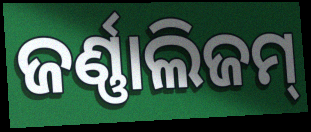
ଜର୍ଣ୍ଣାଲିଜମ୍